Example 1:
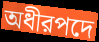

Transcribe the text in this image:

অধীরপদে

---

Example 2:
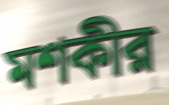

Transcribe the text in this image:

মশকীর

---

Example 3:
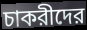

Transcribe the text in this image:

চাকরীদের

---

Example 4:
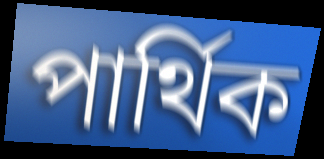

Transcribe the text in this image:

পার্থিক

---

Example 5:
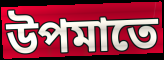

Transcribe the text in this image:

উপমাতে